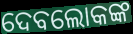
ଦେବଲୋକଙ୍କ